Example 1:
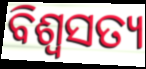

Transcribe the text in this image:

ବିଶ୍ୱସତ୍ୟ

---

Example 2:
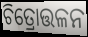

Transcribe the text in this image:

ଚିତ୍ରୋତ୍ତଳନ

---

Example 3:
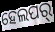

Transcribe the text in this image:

ହେଲପର୍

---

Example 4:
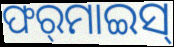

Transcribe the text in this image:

ଫର୍‌ମାଇସ୍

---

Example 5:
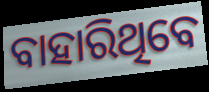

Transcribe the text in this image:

ବାହାରିଥିବେ